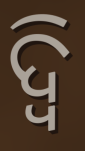
ଦ୍ଵି